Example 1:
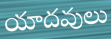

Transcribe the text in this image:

యాదవులు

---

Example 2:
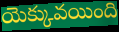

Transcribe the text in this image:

యెక్కువయింది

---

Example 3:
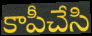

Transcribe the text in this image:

కాపీచేసి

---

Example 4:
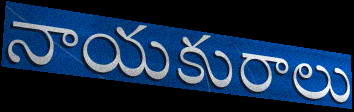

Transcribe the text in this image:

నాయకురాలు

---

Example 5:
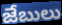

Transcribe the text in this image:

జేబులు